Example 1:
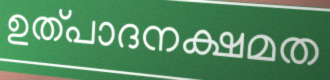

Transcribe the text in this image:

ഉത്പാദനക്ഷമത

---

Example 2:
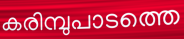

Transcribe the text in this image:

കരിമ്പുപാടത്തെ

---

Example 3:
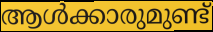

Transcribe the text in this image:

ആൾക്കാരുമുണ്ട്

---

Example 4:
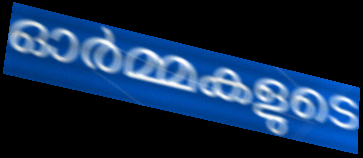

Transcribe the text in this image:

ഓർമ്മകളുടെ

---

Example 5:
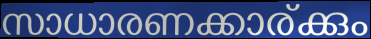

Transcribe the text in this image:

സാധാരണക്കാര്ക്കും